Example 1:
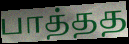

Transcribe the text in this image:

பாத்தத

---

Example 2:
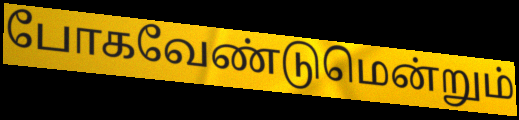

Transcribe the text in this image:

போகவேண்டுமென்றும்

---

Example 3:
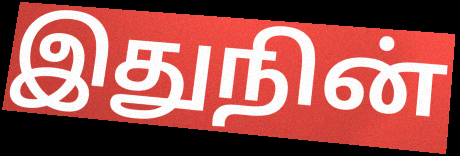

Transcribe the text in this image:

இதுநின்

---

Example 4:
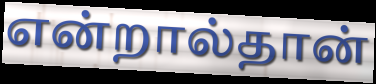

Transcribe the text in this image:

என்றால்தான்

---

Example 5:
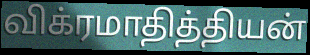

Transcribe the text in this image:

விக்ரமாதித்தியன்